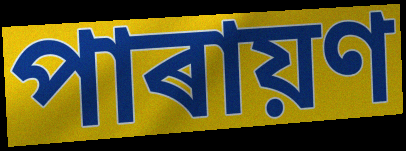
পাৰায়ণ